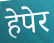
हेपेर